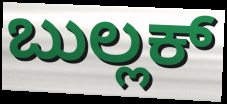
ಬುಲ್ಲಕ್